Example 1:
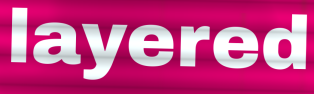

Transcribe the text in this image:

layered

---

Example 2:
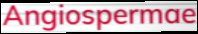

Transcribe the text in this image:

Angiospermae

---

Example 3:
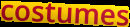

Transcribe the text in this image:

costumes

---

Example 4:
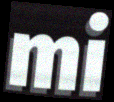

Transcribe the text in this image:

mi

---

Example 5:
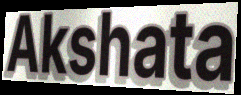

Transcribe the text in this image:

Akshata